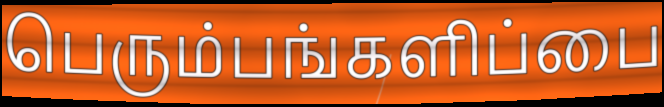
பெரும்பங்களிப்பை